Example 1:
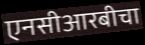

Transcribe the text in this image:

एनसीआरबीचा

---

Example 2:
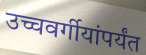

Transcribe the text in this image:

उच्चवर्गीयांपर्यंत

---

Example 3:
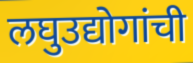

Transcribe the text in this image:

लघुउद्योगांची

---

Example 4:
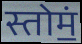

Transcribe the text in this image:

स्तोमं॒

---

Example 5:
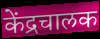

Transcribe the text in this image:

केंद्रचालक